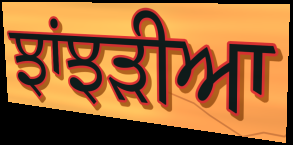
ਝਾਂਝੜੀਆ